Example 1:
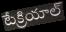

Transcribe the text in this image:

టేక్రియాల్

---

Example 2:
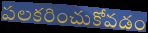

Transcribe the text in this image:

పలకరించుకోవడం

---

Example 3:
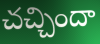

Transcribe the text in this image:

చచ్చిందా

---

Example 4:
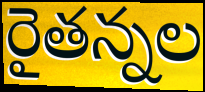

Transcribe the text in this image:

రైతన్నల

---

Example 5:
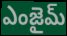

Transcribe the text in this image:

ఎంజైమ్